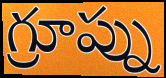
గ్రూప్ను